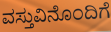
ವಸ್ತುವಿನೊಂದಿಗೆ